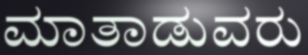
ಮಾತಾಡುವರು